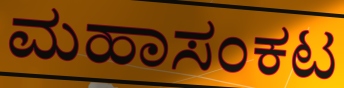
ಮಹಾಸಂಕಟ